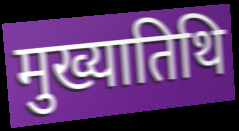
मुख्यातिथि